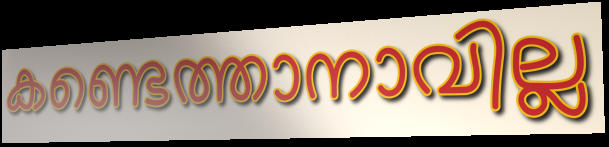
കണ്ടെത്താനാവില്ല